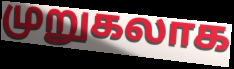
முறுகலாக